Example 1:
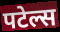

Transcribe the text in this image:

पटेल्स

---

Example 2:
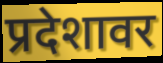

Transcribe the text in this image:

प्रदेशावर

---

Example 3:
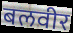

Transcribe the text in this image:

बलवीर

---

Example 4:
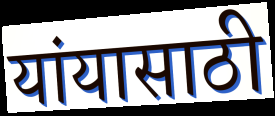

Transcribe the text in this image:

यांयासाठी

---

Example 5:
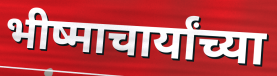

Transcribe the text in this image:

भीष्माचार्यांच्या